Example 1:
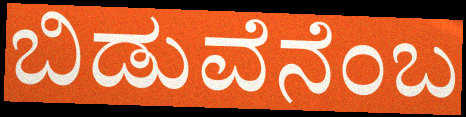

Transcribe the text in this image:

ಬಿಡುವೆನೆಂಬ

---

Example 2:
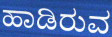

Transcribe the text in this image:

ಹಾಡಿರುವ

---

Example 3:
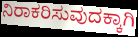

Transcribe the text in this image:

ನಿರಾಕರಿಸುವುದಕ್ಕಾಗಿ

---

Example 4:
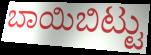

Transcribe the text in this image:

ಬಾಯಿಬಿಟ್ಟು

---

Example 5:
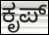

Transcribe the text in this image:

ಕೃಪ್